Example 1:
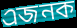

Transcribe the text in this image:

এজনক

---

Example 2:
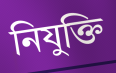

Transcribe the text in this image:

নিযুক্তি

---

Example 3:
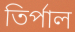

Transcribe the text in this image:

তিৰ্পাল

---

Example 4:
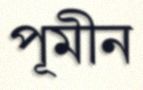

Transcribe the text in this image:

পূমীন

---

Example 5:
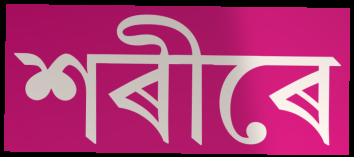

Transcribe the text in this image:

শৰীৰে